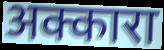
अक्कारा